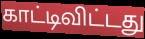
காட்டிவிட்டது